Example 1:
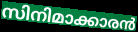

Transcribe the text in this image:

സിനിമാക്കാരൻ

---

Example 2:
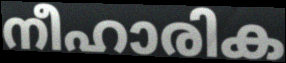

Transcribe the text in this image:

നീഹാരിക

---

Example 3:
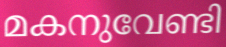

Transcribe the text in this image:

മകനുവേണ്ടി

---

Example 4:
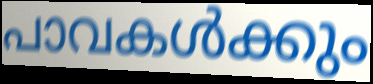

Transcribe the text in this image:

പാവകൾക്കും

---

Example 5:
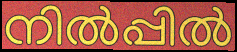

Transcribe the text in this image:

നിൽപ്പിൽ